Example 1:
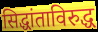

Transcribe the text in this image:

सिद्धांताविरुद्ध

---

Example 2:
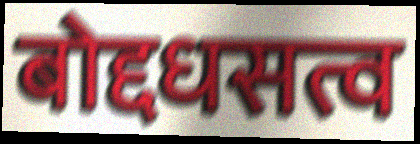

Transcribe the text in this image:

बोद्दधसत्व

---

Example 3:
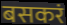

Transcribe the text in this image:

बसकरं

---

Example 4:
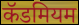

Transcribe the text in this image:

कॅडमियम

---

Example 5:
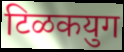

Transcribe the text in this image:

टिळकयुग